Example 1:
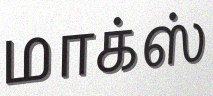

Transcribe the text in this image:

மாக்ஸ்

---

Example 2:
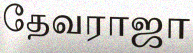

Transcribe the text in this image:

தேவராஜா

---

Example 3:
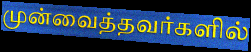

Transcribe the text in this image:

முன்வைத்தவர்களில்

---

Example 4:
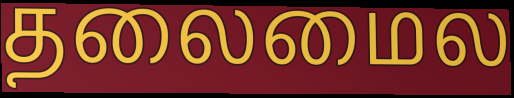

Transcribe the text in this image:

தலைமைல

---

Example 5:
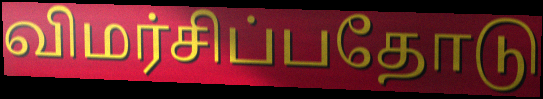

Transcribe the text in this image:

விமர்சிப்பதோடு